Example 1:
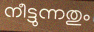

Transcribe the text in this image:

നീട്ടുന്നതും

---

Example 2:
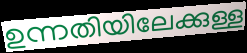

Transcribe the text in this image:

ഉന്നതിയിലേക്കുള്ള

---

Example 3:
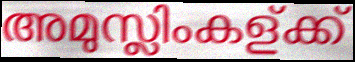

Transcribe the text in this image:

അമുസ്ലിംകള്ക്ക്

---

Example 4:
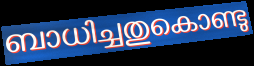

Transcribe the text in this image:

ബാധിച്ചതുകൊണ്ടു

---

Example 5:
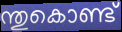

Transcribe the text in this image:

ന്തുകൊണ്ട്